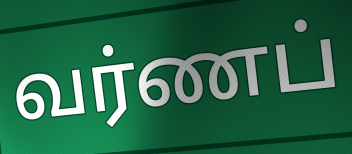
வர்ணப்